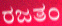
ರಜತಂ